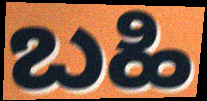
ಬಹಿ